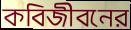
কবিজীবনের